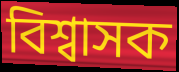
বিশ্বাসক